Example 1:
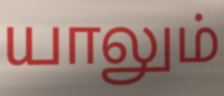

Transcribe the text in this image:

யாலும்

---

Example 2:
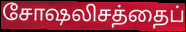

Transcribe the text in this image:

சோஷலிசத்தைப்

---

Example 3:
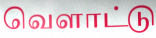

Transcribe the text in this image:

வெளாட்டு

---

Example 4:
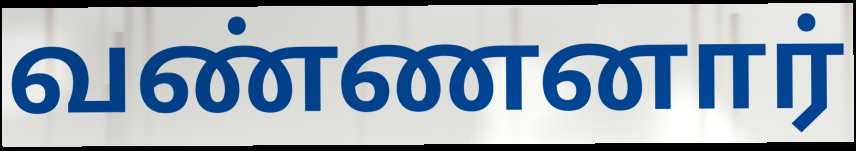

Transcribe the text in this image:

வண்ணனார்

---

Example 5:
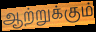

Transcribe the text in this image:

ஆற்றுக்கும்